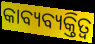
କାବ୍ୟବ୍ୟକ୍ତିତ୍ୱ